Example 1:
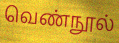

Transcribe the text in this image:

வெண்நூல்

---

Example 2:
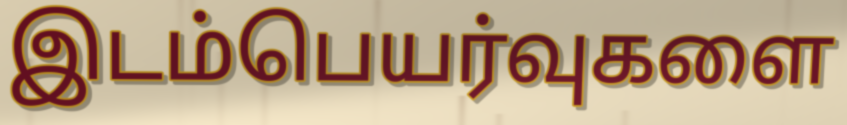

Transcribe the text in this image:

இடம்பெயர்வுகளை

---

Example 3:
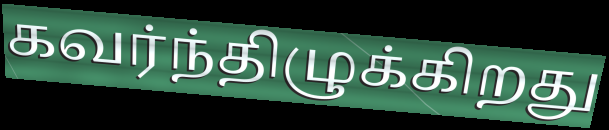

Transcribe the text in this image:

கவர்ந்திழுக்கிறது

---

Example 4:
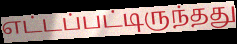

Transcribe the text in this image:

எட்டப்பட்டிருந்தது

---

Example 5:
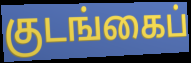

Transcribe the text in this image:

குடங்கைப்